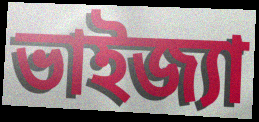
ভাইজ্যা